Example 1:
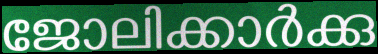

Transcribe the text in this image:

ജോലിക്കാർക്കു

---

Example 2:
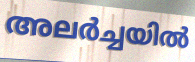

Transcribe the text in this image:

അലർച്ചയിൽ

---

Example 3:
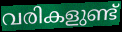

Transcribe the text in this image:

വരികളുണ്ട്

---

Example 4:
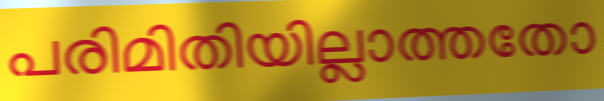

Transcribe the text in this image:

പരിമിതിയില്ലാത്തതോ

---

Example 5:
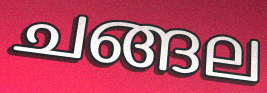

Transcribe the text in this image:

ചങ്ങല